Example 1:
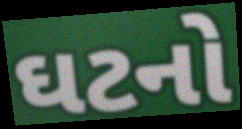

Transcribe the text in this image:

ઘટનો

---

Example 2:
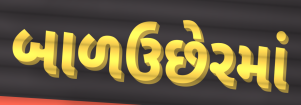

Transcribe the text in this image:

બાળઉછેરમાં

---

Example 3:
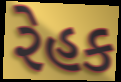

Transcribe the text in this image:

રેહક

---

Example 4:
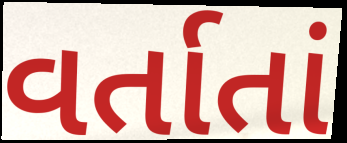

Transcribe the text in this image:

વર્તાતાં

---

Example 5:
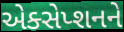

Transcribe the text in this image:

એક્સેપ્શનને